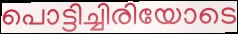
പൊട്ടിച്ചിരിയോടെ